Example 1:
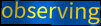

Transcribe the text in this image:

observing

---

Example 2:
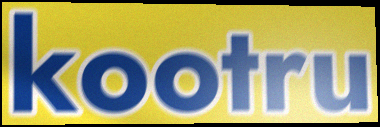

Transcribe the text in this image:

kootru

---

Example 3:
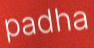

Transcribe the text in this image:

padha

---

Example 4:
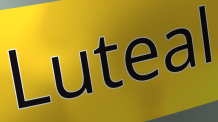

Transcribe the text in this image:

Luteal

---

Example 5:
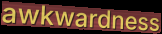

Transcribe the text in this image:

awkwardness